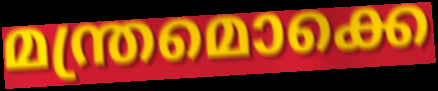
മന്ത്രമൊക്കെ